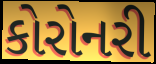
કોરોનરી